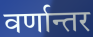
वर्णान्तर